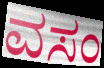
ವಸಂ